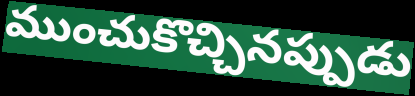
ముంచుకొచ్చినప్పుడు